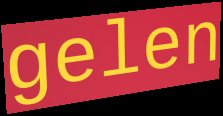
gelen